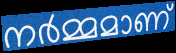
നർമ്മമാണ്